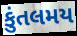
કુંતલમય